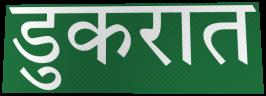
डुकरात